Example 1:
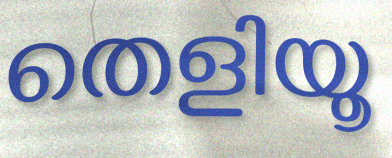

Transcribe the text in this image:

തെളിയൂ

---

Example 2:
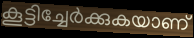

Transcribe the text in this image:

കൂട്ടിച്ചേർക്കുകയാണ്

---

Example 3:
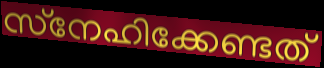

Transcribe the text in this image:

സ്‌നേഹിക്കേണ്ടത്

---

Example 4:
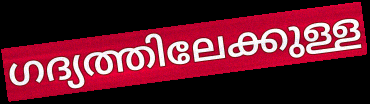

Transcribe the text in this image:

ഗദ്യത്തിലേക്കുള്ള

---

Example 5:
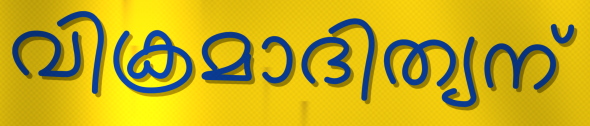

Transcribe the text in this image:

വിക്രമാദിത്യന്